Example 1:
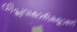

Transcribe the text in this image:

വിപ്ലവകാരികളാണ്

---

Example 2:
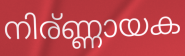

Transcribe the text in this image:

നിര്ണ്ണായക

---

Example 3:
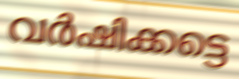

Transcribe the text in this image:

വർഷിക്കട്ടെ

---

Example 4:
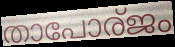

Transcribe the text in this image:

താപോര്ജം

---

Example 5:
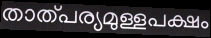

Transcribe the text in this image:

താത്പര്യമുള്ളപക്ഷം